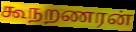
கூநறணரன்